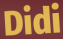
Didi